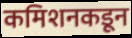
कमिशनकडून